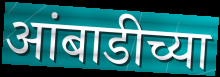
आंबाडीच्या